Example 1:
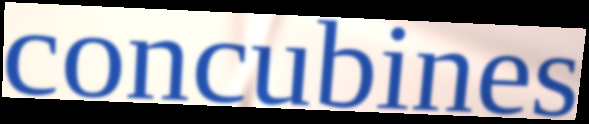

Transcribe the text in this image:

concubines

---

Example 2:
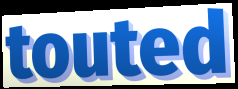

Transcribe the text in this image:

touted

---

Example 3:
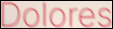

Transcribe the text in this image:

Dolores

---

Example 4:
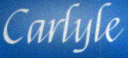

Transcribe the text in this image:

Carlyle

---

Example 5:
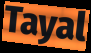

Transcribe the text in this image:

Tayal